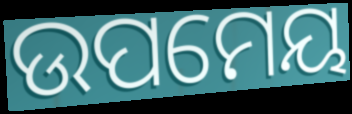
ଉପମେୟ